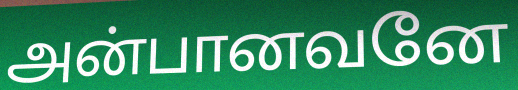
அன்பானவனே